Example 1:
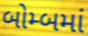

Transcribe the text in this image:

બોમ્બમાં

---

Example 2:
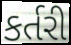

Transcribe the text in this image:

કર્તરી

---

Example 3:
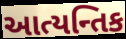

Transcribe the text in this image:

આત્યન્તિક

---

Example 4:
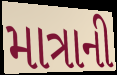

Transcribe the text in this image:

માત્રાની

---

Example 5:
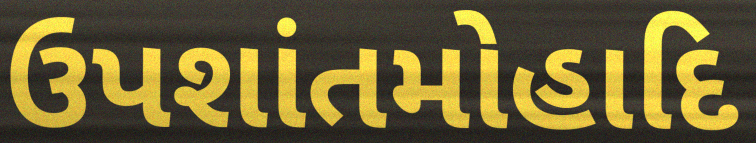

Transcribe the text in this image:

ઉપશાંતમોહાદિ